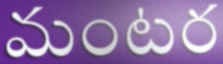
మంటర